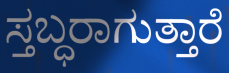
ಸ್ತಬ್ಧರಾಗುತ್ತಾರೆ